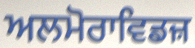
ਅਲਮੋਰਾਵਿਡਜ਼